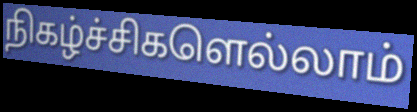
நிகழ்ச்சிகளெல்லாம்